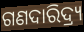
ଗଣଦାରିଦ୍ର୍ୟ